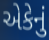
એકેનું